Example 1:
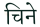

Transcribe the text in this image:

चिने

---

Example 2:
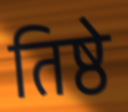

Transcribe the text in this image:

तिष्ठे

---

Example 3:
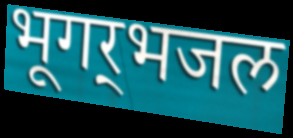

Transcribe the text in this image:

भूगर्भजल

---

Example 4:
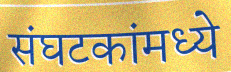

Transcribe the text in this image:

संघटकांमध्ये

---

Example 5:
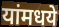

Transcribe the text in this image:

यांमधये